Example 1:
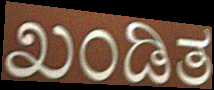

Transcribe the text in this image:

ಖಂಡಿತ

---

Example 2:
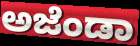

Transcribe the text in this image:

ಅಜೆಂಡಾ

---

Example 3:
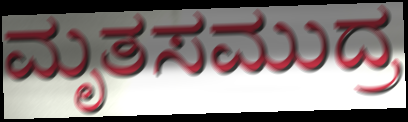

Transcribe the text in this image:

ಮೃತಸಮುದ್ರ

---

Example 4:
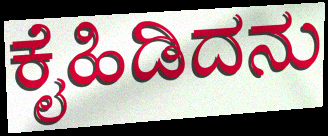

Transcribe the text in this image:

ಕೈಹಿಡಿದನು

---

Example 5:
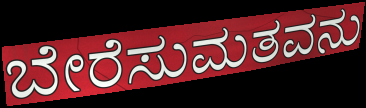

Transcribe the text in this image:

ಬೇರೆಸುಮತವನು